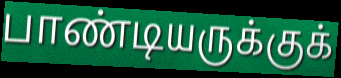
பாண்டியருக்குக்